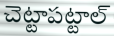
చెట్టాపట్టాల్